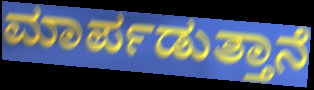
ಮಾರ್ಪಡುತ್ತಾನೆ